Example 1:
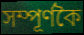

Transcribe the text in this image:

সম্পূৰ্ণকৈ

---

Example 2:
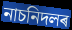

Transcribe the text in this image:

নাচনিদলৰ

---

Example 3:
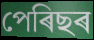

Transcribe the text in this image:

পেৰিছৰ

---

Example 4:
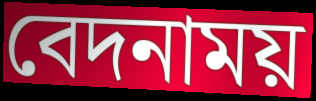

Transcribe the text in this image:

বেদনাময়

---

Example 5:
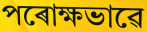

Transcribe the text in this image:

পৰোক্ষভাৱে